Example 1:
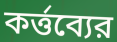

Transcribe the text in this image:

কর্ত্তব্যের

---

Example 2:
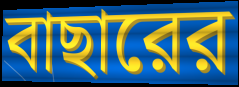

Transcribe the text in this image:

বাছারের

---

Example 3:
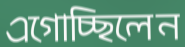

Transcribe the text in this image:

এগোচ্ছিলেন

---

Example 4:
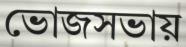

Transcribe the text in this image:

ভোজসভায়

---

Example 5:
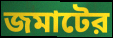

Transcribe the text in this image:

জমাটের